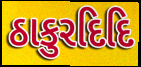
ઠાકુરદિદિ